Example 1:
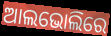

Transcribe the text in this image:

ଆଲଭୋଲିରେ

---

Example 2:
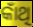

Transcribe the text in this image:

କାଁଥି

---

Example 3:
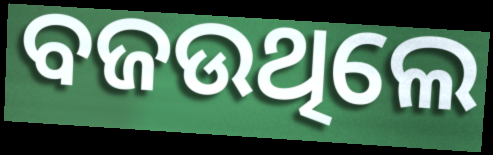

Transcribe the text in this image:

ବଜଉଥିଲେ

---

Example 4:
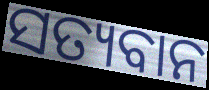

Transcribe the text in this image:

ସତ୍ୟବାନ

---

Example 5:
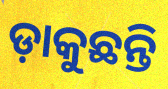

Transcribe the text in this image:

ଡ଼ାକୁଛନ୍ତି